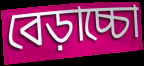
বেড়াচ্চো